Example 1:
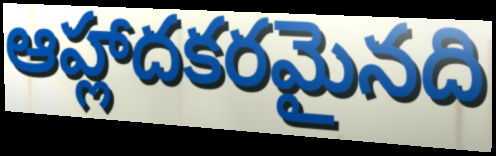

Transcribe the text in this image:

ఆహ్లాదకరమైనది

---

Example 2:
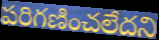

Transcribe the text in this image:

పరిగణించలేదని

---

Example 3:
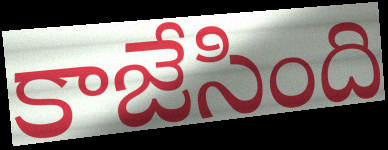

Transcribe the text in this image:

కాజేసింది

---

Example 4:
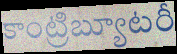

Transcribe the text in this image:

కాంట్రిబ్యూటరీ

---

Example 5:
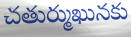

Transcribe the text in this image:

చతుర్ముఖునకు